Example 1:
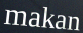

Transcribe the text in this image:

makan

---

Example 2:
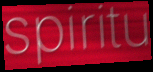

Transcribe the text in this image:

spiritu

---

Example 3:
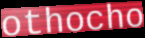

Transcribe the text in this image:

othocho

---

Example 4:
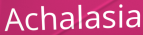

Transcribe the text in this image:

Achalasia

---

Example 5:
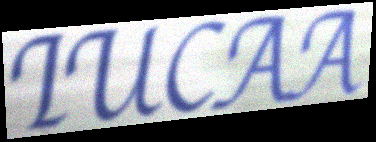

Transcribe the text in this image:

IUCAA